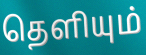
தெளியும்